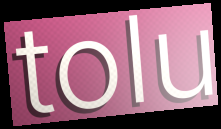
tolu